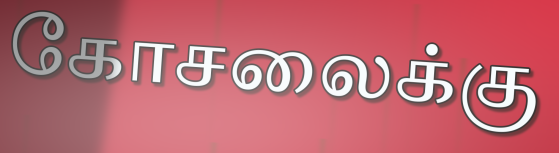
கோசலைக்கு